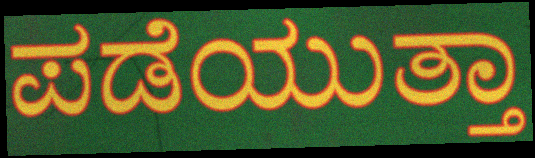
ಪಡೆಯುತ್ತಾ